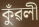
কুঁৱলী